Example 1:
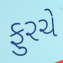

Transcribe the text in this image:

ફુરચે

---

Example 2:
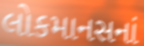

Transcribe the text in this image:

લોકમાનસનાં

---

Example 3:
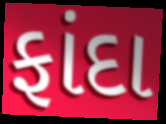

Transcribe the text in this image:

ફાંદા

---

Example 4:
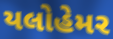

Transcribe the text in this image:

યલોહેમર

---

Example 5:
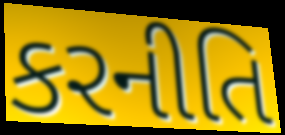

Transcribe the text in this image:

કરનીતિ